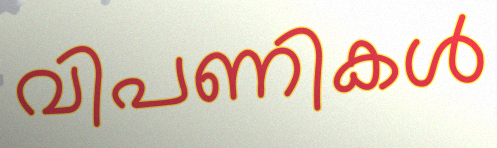
വിപണികൾ